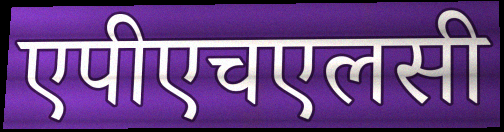
एपीएचएलसी